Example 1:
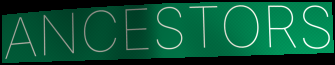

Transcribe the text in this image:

ANCESTORS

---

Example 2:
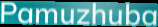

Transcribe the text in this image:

Pamuzhuba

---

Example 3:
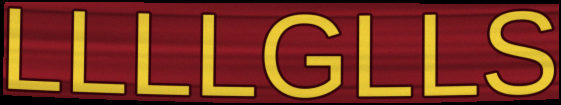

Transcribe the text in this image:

LLLLGLLS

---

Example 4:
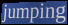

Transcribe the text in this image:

jumping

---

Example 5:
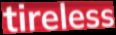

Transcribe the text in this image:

tireless